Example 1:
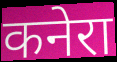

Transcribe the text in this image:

कनेरा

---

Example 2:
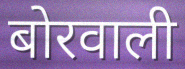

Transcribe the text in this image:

बोरवाली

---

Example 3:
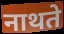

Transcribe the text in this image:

नाथते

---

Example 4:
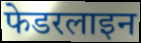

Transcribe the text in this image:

फेडरलाइन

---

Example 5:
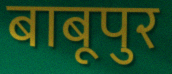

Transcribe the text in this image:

बाबूपुर